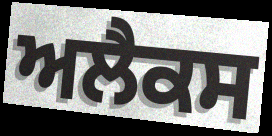
ਅਲੈਕਸ